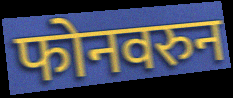
फोनवरुन